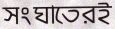
সংঘাতেরই